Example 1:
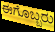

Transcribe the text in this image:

ಈಗೊಬ್ಬರು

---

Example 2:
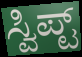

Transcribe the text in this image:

ಸ್ವಿಪ್ಟ್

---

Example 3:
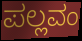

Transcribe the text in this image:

ಪಲ್ಲವಂ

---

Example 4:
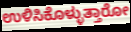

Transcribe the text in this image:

ಉಳಿಸಿಕೊಳ್ಳುತ್ತಾರೋ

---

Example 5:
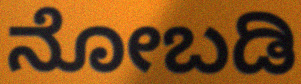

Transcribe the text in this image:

ನೋಬಡಿ